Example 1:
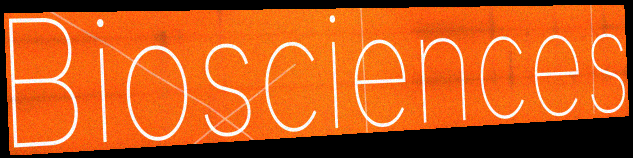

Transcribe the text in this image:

Biosciences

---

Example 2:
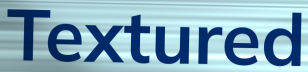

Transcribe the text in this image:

Textured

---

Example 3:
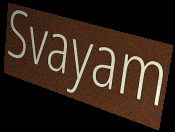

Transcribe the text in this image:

Svayam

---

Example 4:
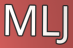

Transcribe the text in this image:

MLJ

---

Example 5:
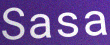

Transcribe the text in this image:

Sasa